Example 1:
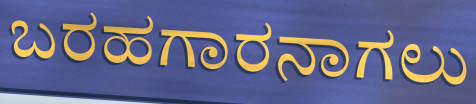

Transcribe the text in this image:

ಬರಹಗಾರನಾಗಲು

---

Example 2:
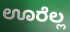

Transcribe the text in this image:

ಊರೆಲ್ಲ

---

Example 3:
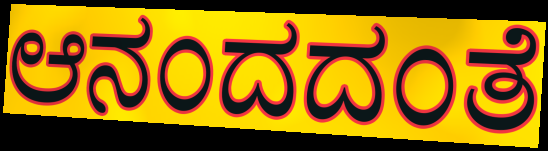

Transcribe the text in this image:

ಆನಂದದಂತೆ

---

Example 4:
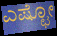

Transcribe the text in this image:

ಎಷ್ಟೋ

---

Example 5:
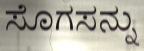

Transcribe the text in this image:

ಸೊಗಸನ್ನು